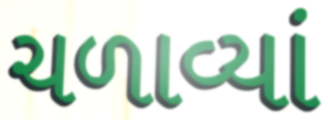
ચળાવ્યાં